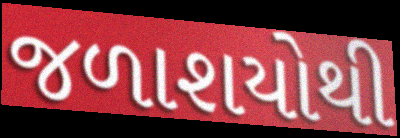
જળાશયોથી